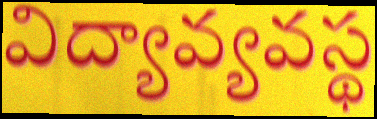
విద్యావ్యవస్థ